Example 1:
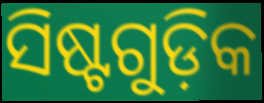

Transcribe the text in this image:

ସିଷ୍ଟଗୁଡ଼ିକ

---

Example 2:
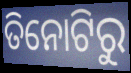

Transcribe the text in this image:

ତିନୋଟିରୁ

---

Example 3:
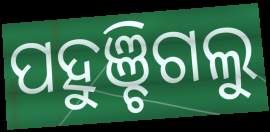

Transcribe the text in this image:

ପହୁଞ୍ଚିଗଲୁ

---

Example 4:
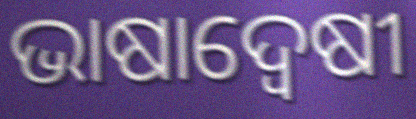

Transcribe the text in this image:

ଭାଷାଦ୍ଵେଷୀ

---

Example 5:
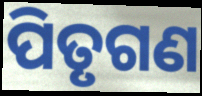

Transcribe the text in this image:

ପିତୃଗଣ